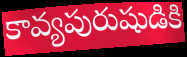
కావ్యపురుషుడికి